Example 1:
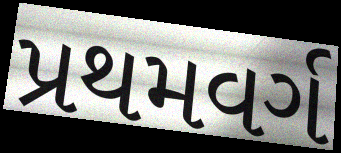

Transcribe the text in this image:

પ્રથમવર્ગ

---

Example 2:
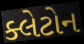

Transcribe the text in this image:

ક્લેટોન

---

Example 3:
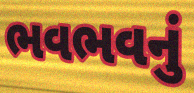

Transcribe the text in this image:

ભવભવનું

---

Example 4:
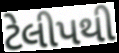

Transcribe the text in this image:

ટેલીપથી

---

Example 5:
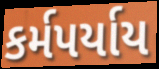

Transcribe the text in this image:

કર્મપર્યાય